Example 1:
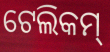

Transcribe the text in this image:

ଟେଲିକମ୍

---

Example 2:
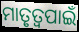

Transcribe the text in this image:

ମାତୃତ୍ୱପାଇଁ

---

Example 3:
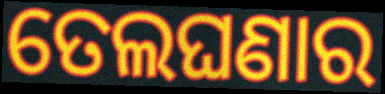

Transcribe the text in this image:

ତେଲଘଣାର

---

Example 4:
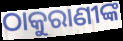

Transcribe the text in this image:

ଠାକୁରାଣୀଙ୍କ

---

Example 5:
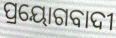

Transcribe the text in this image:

ପ୍ରୟୋଗବାଦୀ